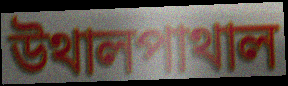
উথালপাথাল